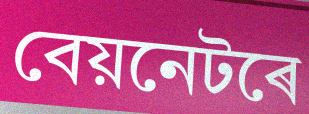
বেয়নেটৰে